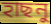
হাছনু